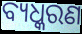
ବ୍ୟଧ୍କରଣ